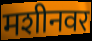
मशीनवर